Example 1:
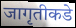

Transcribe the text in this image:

जागृतीकडे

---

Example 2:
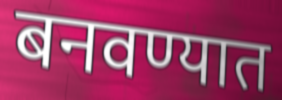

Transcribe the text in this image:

बनवण्यात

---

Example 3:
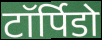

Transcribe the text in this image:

टॉर्पिडो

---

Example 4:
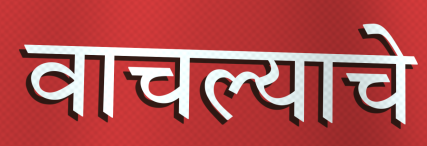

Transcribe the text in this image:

वाचल्याचे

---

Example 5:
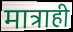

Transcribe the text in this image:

मात्राही